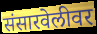
संसारवेलीवर